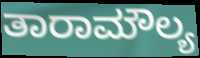
ತಾರಾಮೌಲ್ಯ